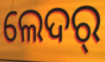
ଲେଦର୍